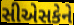
સીએસકેને